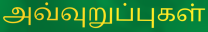
அவ்வுறுப்புகள்